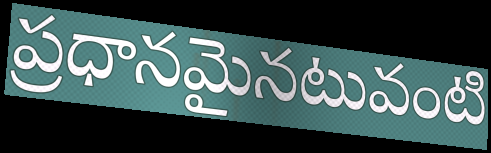
ప్రధానమైనటువంటి